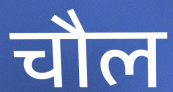
चौल